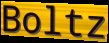
Boltz